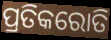
ପ୍ରତିକରୋତି